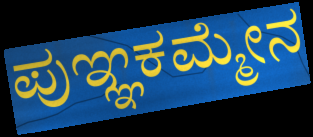
ಪುಞ್ಞಕಮ್ಮೇನ